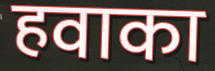
हवाका